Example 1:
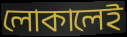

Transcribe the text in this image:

লোকালেই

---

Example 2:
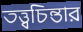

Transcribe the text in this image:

তত্ত্বচিন্তার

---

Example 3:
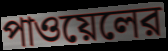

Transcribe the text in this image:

পাওয়েলের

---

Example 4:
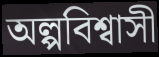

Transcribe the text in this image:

অল্পবিশ্বাসী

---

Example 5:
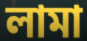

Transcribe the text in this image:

লামা